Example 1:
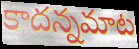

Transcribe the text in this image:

కాదన్నమాట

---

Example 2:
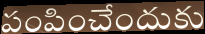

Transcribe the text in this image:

పంపించేందుకు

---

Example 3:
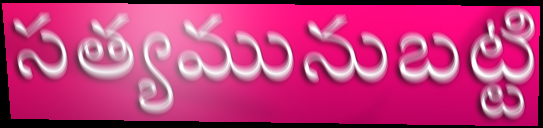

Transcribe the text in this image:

సత్యమునుబట్టి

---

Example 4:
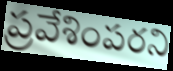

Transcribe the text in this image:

ప్రవేశింపరని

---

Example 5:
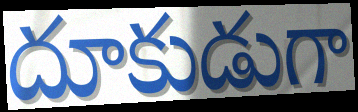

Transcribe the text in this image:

దూకుడుగా